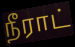
நீராட்